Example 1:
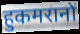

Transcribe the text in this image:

हुकमरानों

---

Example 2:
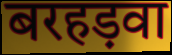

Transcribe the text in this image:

बरहड़वा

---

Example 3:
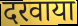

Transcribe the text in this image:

दरवाया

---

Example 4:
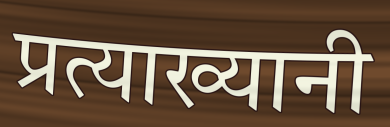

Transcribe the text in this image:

प्रत्याख्यानी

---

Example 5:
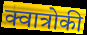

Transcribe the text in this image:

क्वात्रोकी